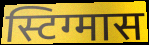
स्टिग्मास